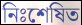
নিঃশেষিত